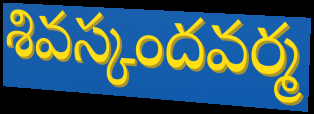
శివస్కందవర్మ